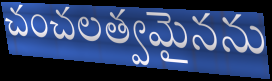
చంచలత్వమైనను